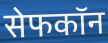
सेफकॉन